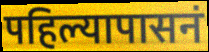
पहिल्यापासनं